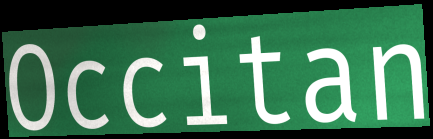
Occitan